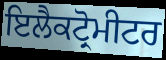
ਇਲੈਕਟ੍ਰੋਮੀਟਰ